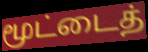
மூட்டைத்